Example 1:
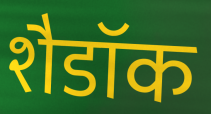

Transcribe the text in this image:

शैडॉक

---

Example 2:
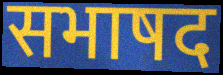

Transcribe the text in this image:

सभाषद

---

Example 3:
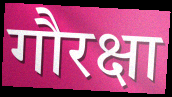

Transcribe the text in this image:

गौरक्षा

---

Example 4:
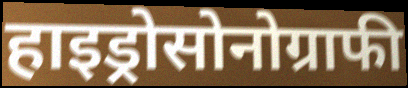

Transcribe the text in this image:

हाइड्रोसोनोग्राफी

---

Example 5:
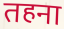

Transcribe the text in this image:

तहना